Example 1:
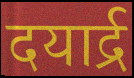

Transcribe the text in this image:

दयार्द्र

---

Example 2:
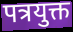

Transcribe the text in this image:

पत्रयुक्त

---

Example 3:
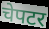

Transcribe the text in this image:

चेपटर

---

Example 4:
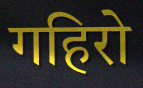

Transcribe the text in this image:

गहिरो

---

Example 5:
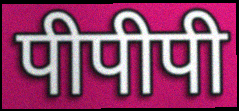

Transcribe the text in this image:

पीपीपी